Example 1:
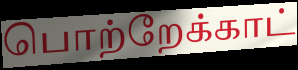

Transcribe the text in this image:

பொற்றேக்காட்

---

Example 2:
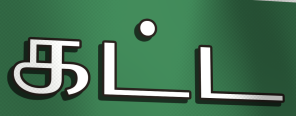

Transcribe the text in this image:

கட்ட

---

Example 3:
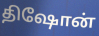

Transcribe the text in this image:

திஷோன்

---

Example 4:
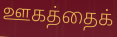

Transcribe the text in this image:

ஊகத்தைக்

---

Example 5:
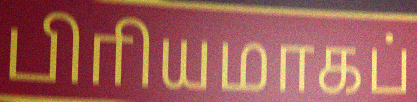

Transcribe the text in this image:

பிரியமாகப்